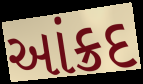
આંક્રદ